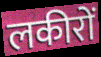
लकीरों